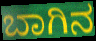
ಬಾಗಿನ